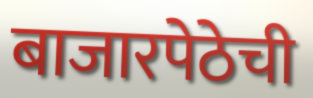
बाजारपेठेची